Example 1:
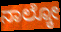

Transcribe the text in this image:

ನಾಲ್ಕೋ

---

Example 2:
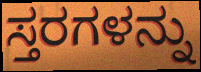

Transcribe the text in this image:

ಸ್ತರಗಳನ್ನು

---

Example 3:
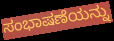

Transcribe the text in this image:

ಸಂಭಾಷಣೆಯನ್ನು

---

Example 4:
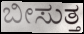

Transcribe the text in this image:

ಬೀಸುತ್ತ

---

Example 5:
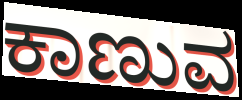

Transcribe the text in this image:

ಕಾಣುವ